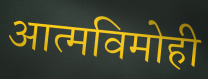
आत्मविमोही